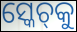
ସ୍କେଚ୍‌କୁ